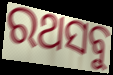
ରଥସବୁ